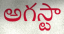
అగస్టా